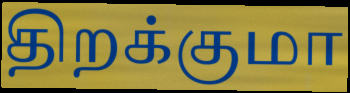
திறக்குமா